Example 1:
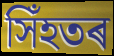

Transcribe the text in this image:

সিঁহতৰ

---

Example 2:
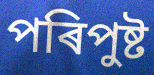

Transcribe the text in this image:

পৰিপুষ্ট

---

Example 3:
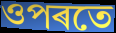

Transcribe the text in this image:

ওপৰতে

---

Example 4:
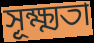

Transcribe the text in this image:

সূক্ষ্মতা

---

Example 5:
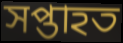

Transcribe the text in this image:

সপ্তাহত